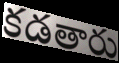
కడతారు